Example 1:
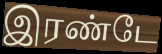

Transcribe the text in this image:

இரண்டே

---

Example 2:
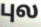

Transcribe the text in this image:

புல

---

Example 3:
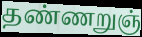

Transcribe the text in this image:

தண்ணறுஞ்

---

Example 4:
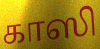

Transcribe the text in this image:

காஸி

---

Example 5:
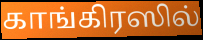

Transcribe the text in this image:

காங்கிரஸில்